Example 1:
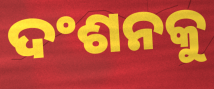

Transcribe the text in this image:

ଦଂଶନକୁ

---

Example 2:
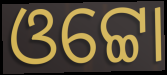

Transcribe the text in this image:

ଓଟ୍ଟୋ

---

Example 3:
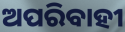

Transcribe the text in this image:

ଅପରିବାହୀ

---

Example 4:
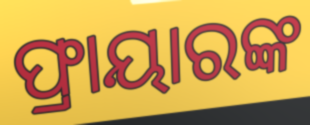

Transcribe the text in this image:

ଫ୍ରାୟାରଙ୍କ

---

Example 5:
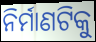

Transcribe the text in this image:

ନିର୍ମାଣଟିକୁ